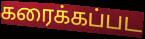
கரைக்கப்பட